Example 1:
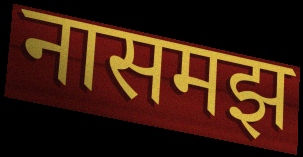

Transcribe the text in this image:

नासमझ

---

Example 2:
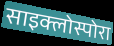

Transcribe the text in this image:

साइक्लोस्पोरा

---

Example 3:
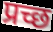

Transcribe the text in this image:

प्रच्छ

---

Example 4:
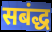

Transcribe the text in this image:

सबंद्ध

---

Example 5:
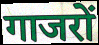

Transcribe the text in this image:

गाजरों